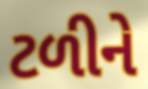
ટળીને